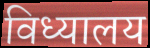
विध्यालय